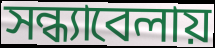
সন্ধ্যাবেলায়